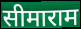
सीमाराम